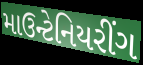
માઉન્ટેનિયરીંગ